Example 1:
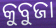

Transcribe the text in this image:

କୁବୁଜା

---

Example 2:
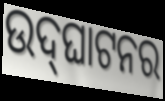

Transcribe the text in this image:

ଉଦ୍‌ଘାଟନର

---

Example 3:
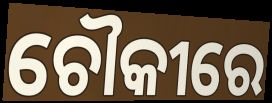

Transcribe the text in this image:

ଚୌକୀରେ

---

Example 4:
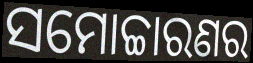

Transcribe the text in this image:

ସମୋଚ୍ଚାରଣର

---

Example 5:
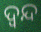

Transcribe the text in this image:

ଦ୍ଵନ୍ଦ